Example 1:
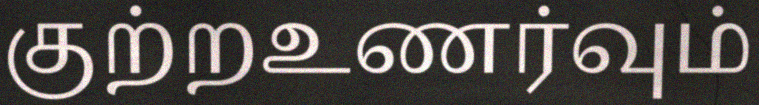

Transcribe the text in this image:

குற்றஉணர்வும்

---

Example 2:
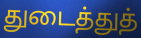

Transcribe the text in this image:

துடைத்துத்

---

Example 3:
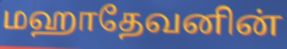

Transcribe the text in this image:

மஹாதேவனின்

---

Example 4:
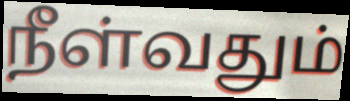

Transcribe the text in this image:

நீள்வதும்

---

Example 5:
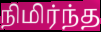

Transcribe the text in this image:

நிமிர்ந்த